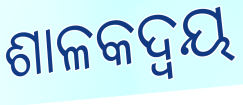
ଶାଳକଦ୍ୱୟ